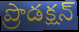
ప్రొడక్షన్